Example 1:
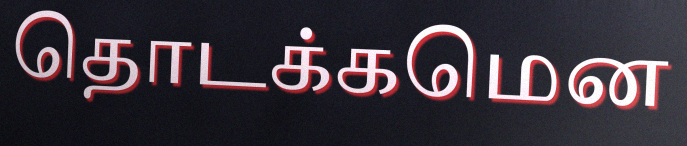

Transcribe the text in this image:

தொடக்கமென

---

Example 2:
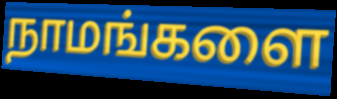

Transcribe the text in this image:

நாமங்களை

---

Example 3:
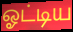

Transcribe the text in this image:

ஓட்டிய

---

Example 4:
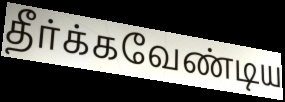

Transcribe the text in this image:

தீர்க்கவேண்டிய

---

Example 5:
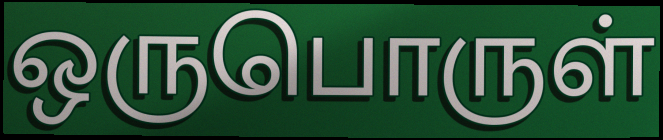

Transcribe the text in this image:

ஒருபொருள்